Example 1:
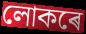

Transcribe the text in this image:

লোকৰে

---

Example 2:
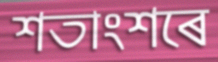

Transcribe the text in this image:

শতাংশৰে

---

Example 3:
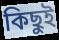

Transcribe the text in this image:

কিছুই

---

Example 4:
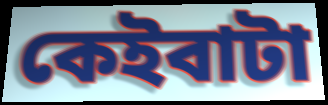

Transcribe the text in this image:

কেইবাটা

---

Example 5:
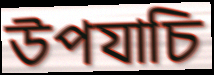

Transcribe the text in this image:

উপযাচি